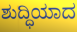
ಶುದ್ಧಿಯಾದ